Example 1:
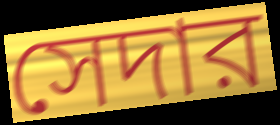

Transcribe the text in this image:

সেদার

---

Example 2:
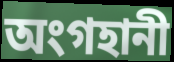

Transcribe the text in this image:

অংগহানী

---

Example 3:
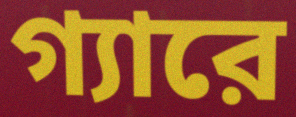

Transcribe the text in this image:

গ্যারে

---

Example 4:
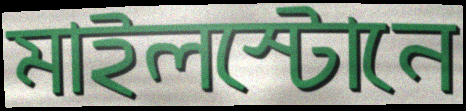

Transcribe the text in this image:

মাইলস্টোনে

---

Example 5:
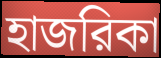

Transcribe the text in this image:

হাজরিকা